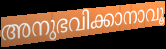
അനുഭവിക്കാനാവൂ